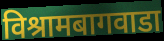
विश्रामबागवाडा